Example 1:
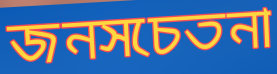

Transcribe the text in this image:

জনসচেতনা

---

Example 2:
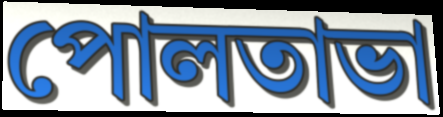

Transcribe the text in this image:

পোলতাভা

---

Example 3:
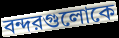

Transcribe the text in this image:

বন্দরগুলোকে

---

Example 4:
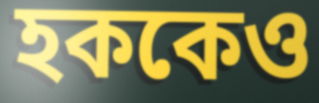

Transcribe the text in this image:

হককেও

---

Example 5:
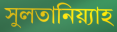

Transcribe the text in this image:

সুলতানিয়্যাহ